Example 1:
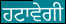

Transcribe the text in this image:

ਹਟਾਵੇਗੀ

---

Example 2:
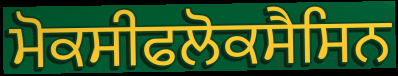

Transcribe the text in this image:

ਮੋਕਸੀਫਲੋਕਸੈਸਿਨ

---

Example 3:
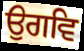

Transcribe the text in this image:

ਉਗਵਿ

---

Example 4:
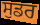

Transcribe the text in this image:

ਸੁਡਰ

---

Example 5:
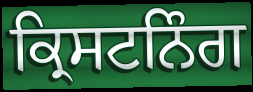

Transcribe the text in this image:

ਕ੍ਰਿਸਟਨਿੰਗ